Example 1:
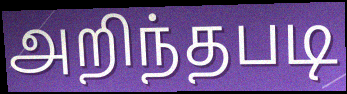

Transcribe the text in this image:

அறிந்தபடி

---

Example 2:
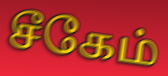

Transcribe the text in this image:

சீகேம்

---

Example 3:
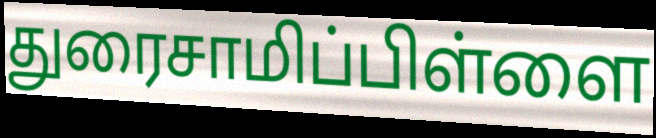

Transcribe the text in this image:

துரைசாமிப்பிள்ளை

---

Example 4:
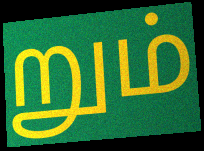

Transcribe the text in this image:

றும்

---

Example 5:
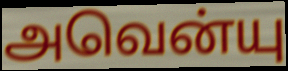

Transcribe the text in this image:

அவென்யு